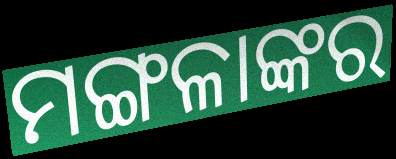
ମଙ୍ଗଳାଙ୍କର